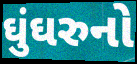
ઘુંઘરુનો